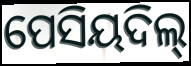
ପେସିୟଦିଲ୍